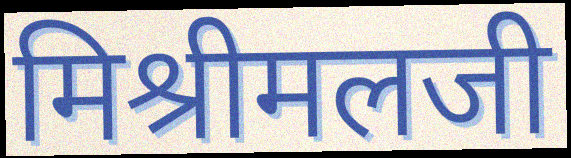
मिश्रीमलजी